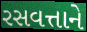
રસવત્તાને